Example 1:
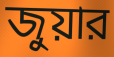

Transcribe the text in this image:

জুয়ার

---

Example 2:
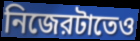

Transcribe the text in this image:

নিজেরটাতেও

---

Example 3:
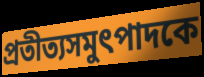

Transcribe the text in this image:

প্রতীত্যসমুৎপাদকে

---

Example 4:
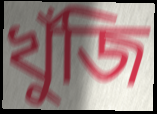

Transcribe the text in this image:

খুঁজি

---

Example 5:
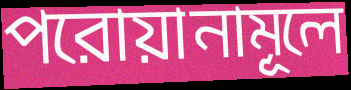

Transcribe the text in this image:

পরোয়ানামূলে